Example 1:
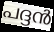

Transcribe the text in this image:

പദ്ദൻ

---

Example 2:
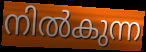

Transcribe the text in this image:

നിൽകുന്ന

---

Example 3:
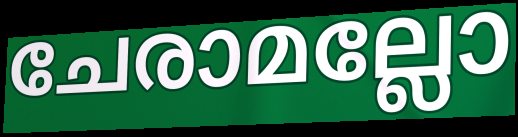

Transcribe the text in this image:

ചേരാമല്ലോ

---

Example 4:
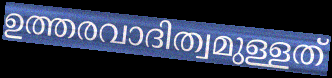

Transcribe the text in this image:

ഉത്തരവാദിത്വമുള്ളത്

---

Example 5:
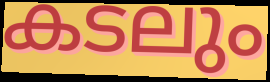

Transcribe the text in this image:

കടലും